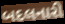
બદલનારી